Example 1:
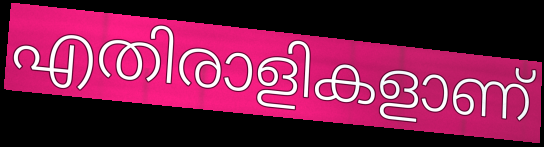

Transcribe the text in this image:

എതിരാളികളാണ്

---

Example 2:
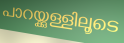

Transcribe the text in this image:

പാറയ്ക്കുള്ളിലൂടെ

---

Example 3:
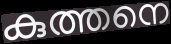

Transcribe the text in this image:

കുത്തനെ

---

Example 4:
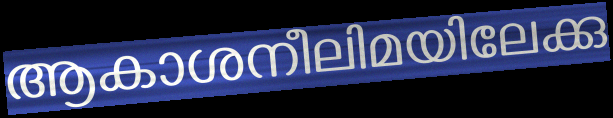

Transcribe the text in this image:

ആകാശനീലിമയിലേക്കു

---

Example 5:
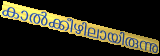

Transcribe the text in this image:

കാൽക്കീഴിലായിരുന്നു